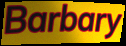
Barbary